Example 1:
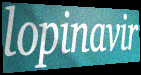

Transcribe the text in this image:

lopinavir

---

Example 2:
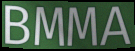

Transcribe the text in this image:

BMMA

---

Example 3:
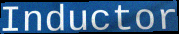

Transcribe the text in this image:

Inductor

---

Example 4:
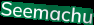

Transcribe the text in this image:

Seemachu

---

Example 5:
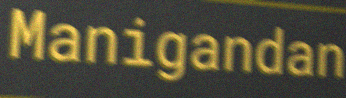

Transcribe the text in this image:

Manigandan